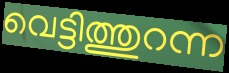
വെട്ടിത്തുറന്ന